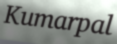
Kumarpal